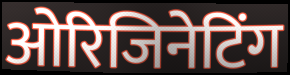
ओरिजिनेटिंग